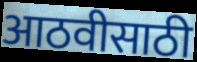
आठवीसाठी